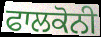
ਫਾਲਕੋਨੀ